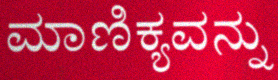
ಮಾಣಿಕ್ಯವನ್ನು